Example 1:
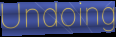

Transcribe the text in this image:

Undoing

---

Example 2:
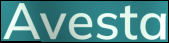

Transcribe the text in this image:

Avesta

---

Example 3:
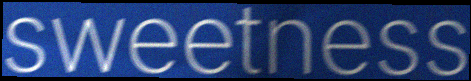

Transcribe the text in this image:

sweetness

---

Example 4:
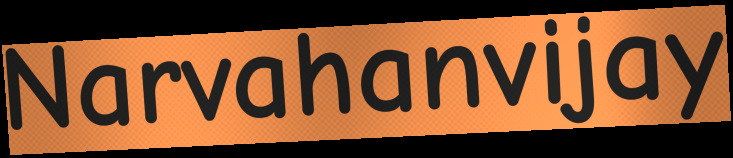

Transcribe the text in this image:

Narvahanvijay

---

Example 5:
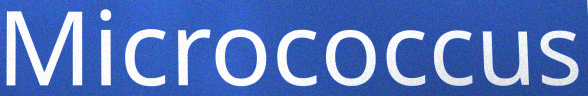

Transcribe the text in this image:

Micrococcus